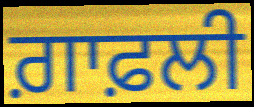
ਗ਼ਾਫ਼ਲੀ